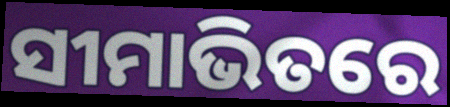
ସୀମାଭିତରେ